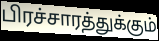
பிரச்சாரத்துக்கும்